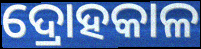
ଦ୍ରୋହକାଳ